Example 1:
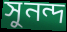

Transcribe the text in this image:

সুনন্দ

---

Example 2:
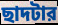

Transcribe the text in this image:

ছাদটার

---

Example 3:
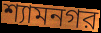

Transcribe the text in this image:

শ্যামনগর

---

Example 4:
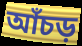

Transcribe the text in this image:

আঁচড়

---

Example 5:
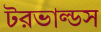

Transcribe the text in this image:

টরভাল্ডস